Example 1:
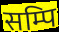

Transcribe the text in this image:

सम्पि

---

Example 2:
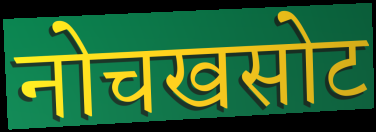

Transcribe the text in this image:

नोचखसोट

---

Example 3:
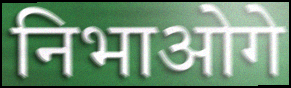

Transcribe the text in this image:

निभाओगे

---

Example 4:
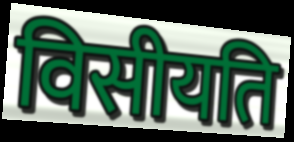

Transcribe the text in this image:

विसीयति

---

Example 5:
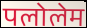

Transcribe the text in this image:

पलोलेम